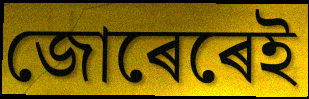
জোৰেৰেই